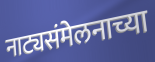
नाट्यसंमेलनाच्या